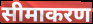
सीमाकरण